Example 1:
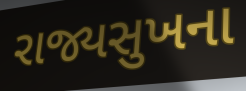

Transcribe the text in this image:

રાજ્યસુખના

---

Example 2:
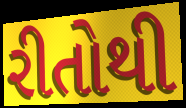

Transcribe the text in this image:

રીતોથી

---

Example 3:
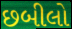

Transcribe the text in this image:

છબીલો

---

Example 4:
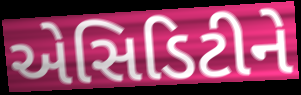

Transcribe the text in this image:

એસિડિટીને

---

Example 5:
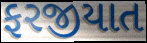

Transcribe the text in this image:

ફરજીયાત